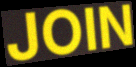
JOIN